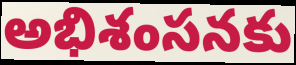
అభిశంసనకు